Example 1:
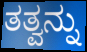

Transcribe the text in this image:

ತತ್ವನ್ನು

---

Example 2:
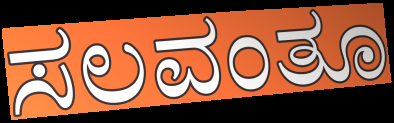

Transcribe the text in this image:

ಸಲವಂತೂ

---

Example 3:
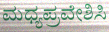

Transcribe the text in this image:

ಮಧ್ಯಪ್ರವೇಶಿಸಿ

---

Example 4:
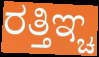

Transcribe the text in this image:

ರತ್ತಿಞ್ಚ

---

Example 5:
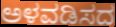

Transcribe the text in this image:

ಅಳವಡಿಸದ